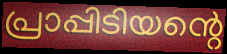
പ്രാപ്പിടിയന്റെ